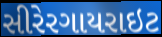
સીરેરગાયરાઇટ